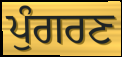
ਪੁੰਗਰਣ